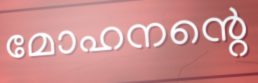
മോഹനന്റെ